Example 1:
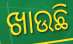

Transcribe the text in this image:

ଖାଉଛି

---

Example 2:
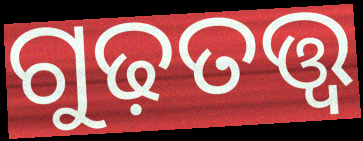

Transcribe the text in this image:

ଗୁଢ଼ତତ୍ତ୍ୱ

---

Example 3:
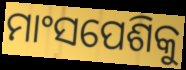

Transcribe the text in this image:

ମାଂସପେଶିକୁ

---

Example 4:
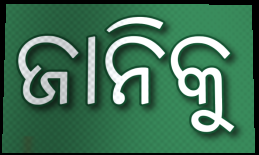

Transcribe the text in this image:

ଜାନିକୁ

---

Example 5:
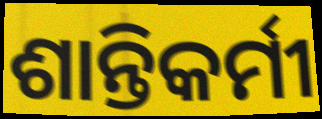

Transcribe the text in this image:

ଶାନ୍ତିକର୍ମୀ